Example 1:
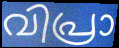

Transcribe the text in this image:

വിപ്രാ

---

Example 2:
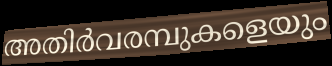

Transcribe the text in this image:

അതിർവരമ്പുകളെയും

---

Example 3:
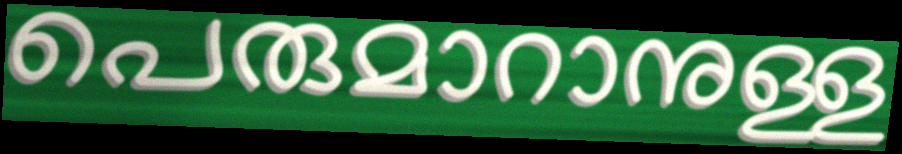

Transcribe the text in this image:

പെരുമാറാനുള്ള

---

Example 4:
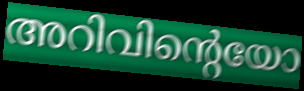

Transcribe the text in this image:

അറിവിന്റെയോ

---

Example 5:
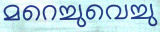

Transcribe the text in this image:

മറെച്ചുവെച്ചു